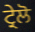
ਟ੍ਰੇਲੋ